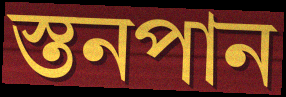
স্তনপান